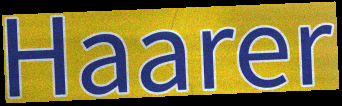
Haarer